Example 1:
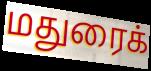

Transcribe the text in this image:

மதுரைக்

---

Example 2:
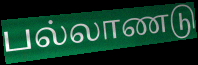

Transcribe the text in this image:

பல்லாணடு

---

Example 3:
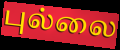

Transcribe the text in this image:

புல்லை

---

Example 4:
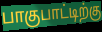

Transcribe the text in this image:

பாகுபாட்டிற்கு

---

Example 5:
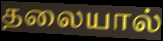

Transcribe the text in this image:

தலையால்